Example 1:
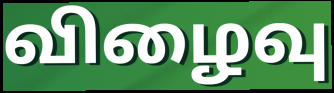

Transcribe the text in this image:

விழைவு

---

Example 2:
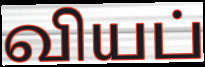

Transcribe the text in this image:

வியப்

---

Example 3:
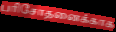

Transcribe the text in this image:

பரிசோதனைக்காக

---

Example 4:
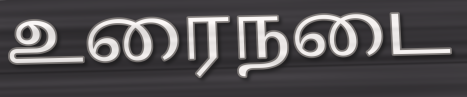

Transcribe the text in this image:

உரைநடை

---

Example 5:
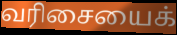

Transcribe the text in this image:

வரிசையைக்